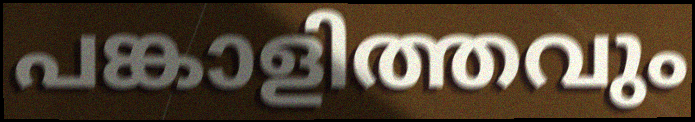
പങ്കാളിത്തവും